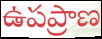
ఉపప్రాణ